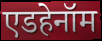
एडहेनॉम